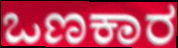
ಒಣಕಾರ